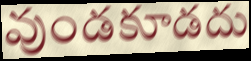
వుండకూడదు